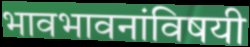
भावभावनांविषयी